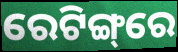
ରେଟିଙ୍ଗ୍‌ରେ